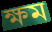
ক্ষম